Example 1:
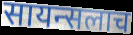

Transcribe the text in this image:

सायन्सलाच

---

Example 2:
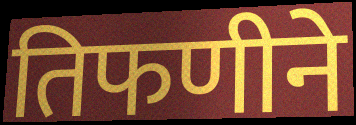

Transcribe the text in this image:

तिफणीने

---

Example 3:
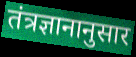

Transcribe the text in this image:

तंत्रज्ञानानुसार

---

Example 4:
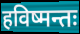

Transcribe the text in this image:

हविष्मन्तः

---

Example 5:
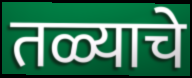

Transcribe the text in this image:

तळ्याचे